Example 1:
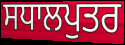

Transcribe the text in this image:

ਸਧਾਲਪੁਤਰ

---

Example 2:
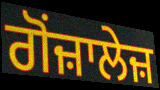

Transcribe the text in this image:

ਗੋਂਜ਼ਾਲੇਜ਼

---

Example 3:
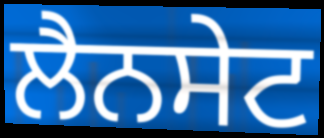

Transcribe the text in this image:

ਲੈਨਸੇਟ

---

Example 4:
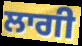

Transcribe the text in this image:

ਲਾਗੀ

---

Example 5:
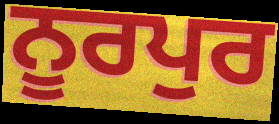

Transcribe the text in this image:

ਨੂਰਪੁਰ